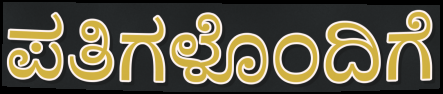
ಪತಿಗಳೊಂದಿಗೆ